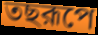
তছরূপে